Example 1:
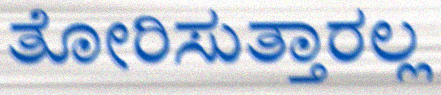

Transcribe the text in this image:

ತೋರಿಸುತ್ತಾರಲ್ಲ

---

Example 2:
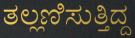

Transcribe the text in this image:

ತಲ್ಲಣಿಸುತ್ತಿದ್ದ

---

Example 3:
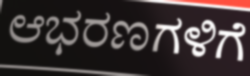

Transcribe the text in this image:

ಆಭರಣಗಳಿಗೆ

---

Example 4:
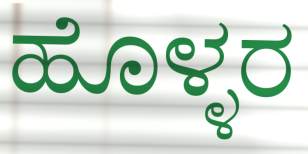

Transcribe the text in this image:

ಹೊಳ್ಳರ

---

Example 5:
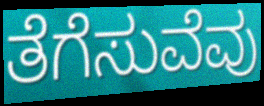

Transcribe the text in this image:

ತೆಗೆಸುವೆವು